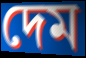
দেম